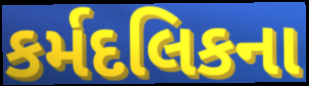
કર્મદલિકના